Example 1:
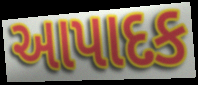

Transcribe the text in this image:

આપાદક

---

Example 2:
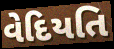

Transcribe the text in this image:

વેદિયતિ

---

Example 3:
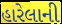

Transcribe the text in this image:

હારેલાની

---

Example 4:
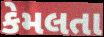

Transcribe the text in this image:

કેમલતા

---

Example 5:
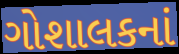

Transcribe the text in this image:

ગોશાલકનાં